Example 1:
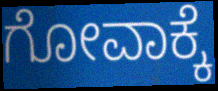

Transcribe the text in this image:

ಗೋವಾಕ್ಕೆ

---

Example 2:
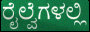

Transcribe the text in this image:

ರೈಲ್ವೆಗಳಲ್ಲಿ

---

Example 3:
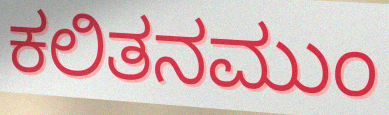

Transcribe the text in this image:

ಕಲಿತನಮುಂ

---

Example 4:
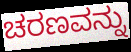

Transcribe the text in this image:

ಚರಣವನ್ನು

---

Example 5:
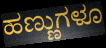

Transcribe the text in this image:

ಹಣ್ಣುಗಳೂ